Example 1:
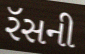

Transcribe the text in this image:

રૅસની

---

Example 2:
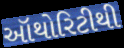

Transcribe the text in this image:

ઑથોરિટીથી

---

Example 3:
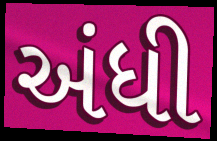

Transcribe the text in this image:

અંધી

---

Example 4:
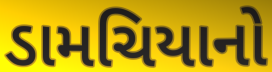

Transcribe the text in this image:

ડામચિયાનો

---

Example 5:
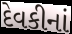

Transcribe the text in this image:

દેવકીનાં